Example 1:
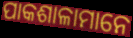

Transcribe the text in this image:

ପାକଶାଳାମାନେ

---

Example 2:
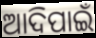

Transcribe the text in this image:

ଆଦିପାଇଁ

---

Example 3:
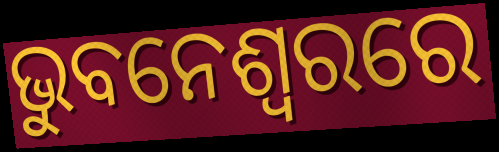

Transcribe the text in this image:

ଭୁବନେଶ୍ୱରରେ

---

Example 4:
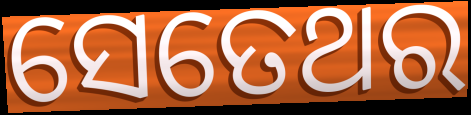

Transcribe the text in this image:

ସେତେଥର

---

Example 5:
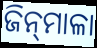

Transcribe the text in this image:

ଜିନ୍‌ମାଳା